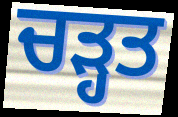
ਚੜ੍ਹਤ